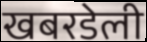
खबरडेली